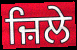
ਜ਼ਿਲੇ